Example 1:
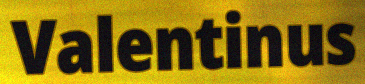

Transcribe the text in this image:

Valentinus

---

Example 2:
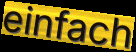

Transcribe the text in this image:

einfach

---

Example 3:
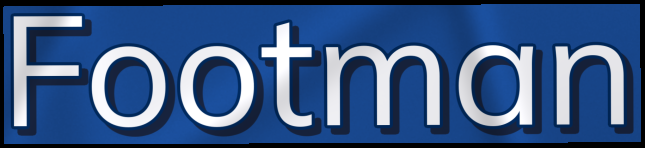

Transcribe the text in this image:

Footman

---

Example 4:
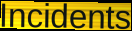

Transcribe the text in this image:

Incidents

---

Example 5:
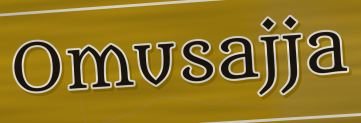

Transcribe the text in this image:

Omusajja